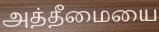
அத்தீமையை